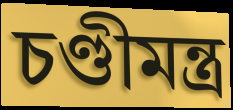
চণ্ডীমন্ত্র